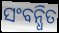
ସଂବନ୍ଧିତ